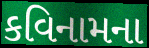
કવિનામના